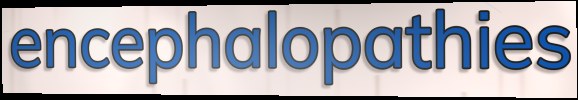
encephalopathies